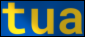
tua